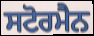
ਸਟੋਰਮੈਨ